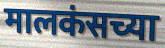
मालकंसच्या